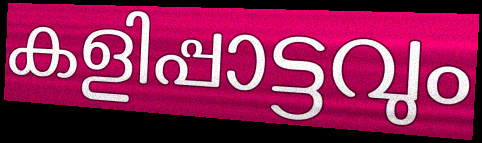
കളിപ്പാട്ടവും